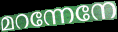
മറന്നേനേ